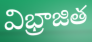
విభ్రాజిత